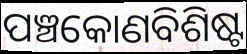
ପଞ୍ଚକୋଣବିଶିଷ୍ଟ